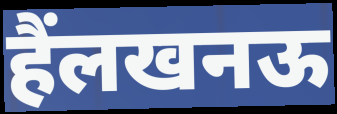
हैंलखनऊ